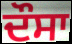
ਦੌਸਾ